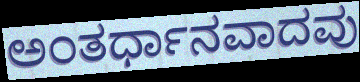
ಅಂತರ್ಧಾನವಾದವು